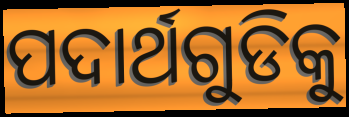
ପଦାର୍ଥଗୁଡିକୁ